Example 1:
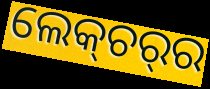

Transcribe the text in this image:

ଲେକ୍‌ଚର୍‌ର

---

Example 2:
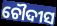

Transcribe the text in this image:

ଚୌଦୀସ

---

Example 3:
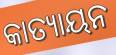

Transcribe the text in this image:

କାତ୍ୟାୟନ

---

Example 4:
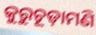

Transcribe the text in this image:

କୁରୁଚୂଡ଼ାମଣି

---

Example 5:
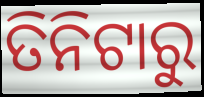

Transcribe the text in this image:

ତିନିଟାରୁ